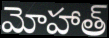
మోహాత్